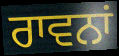
ਰਾਵਨਾਂ